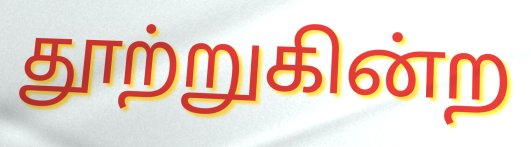
தூற்றுகின்ற